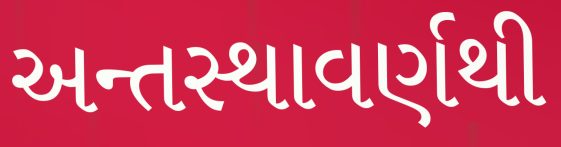
અન્તસ્થાવર્ણથી